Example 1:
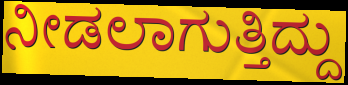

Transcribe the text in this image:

ನೀಡಲಾಗುತ್ತಿದ್ದು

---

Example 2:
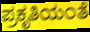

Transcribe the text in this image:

ಪ್ರಕೃತಿಯಂತೆ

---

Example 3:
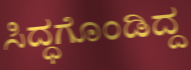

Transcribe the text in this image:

ಸಿದ್ಧಗೊಂಡಿದ್ದ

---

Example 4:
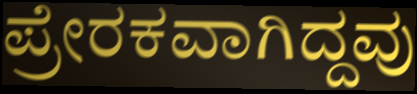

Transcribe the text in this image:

ಪ್ರೇರಕವಾಗಿದ್ದವು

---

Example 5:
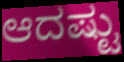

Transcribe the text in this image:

ಆದಷ್ಟು